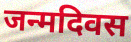
जन्मदिवस